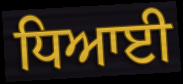
ਧਿਆਈ